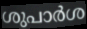
ശുപാർശ